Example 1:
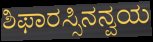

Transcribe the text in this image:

ಶಿಫಾರಸ್ಸಿನನ್ವಯ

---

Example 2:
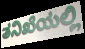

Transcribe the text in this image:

ತನಿಖೆಯಲ್ಲಿ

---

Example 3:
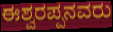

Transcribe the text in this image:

ಈಶ್ವರಪ್ಪನವರು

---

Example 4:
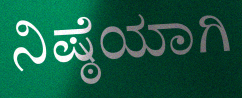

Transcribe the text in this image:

ನಿಷ್ಠೆಯಾಗಿ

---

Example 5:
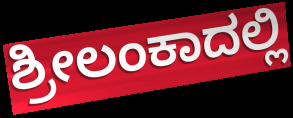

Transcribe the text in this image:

ಶ್ರೀಲಂಕಾದಲ್ಲಿ